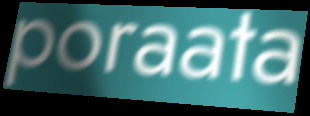
poraata